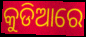
କୁଡିଆରେ